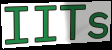
IITs